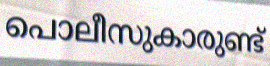
പൊലീസുകാരുണ്ട്